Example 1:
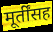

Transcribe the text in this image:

मूर्तींसह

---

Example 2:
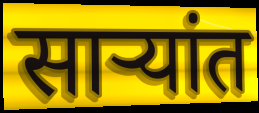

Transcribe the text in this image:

साऱ्यांत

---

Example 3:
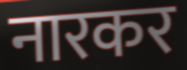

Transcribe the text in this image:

नारकर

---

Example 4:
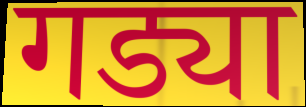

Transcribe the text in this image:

गड्या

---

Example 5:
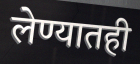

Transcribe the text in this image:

लेण्यातही